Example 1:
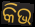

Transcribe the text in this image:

କିଭ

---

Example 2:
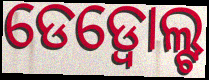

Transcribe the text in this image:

ଡେଡ୍ବୋଲ୍ଟ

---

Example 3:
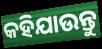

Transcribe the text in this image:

କହିଯାଉନ୍ତୁ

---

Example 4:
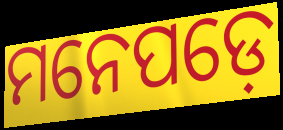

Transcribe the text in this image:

ମନେପଡ଼େ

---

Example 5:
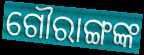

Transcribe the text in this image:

ଗୌରାଙ୍ଗଙ୍କ